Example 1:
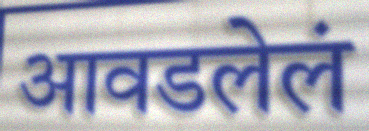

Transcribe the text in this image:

आवडलेलं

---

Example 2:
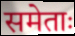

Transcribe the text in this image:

समेताः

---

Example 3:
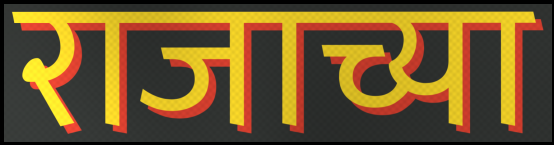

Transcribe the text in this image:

राजाच्या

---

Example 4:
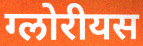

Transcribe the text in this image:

ग्लोरीयस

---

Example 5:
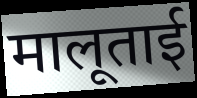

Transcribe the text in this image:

मालूताई